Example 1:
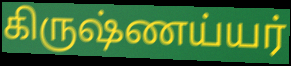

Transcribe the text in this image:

கிருஷ்ணய்யர்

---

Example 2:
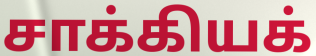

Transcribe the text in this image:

சாக்கியக்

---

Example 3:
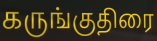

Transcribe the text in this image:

கருங்குதிரை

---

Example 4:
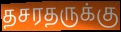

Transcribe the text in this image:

தசரதருக்கு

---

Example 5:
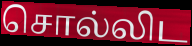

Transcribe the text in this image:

சொல்லிட